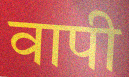
वापी